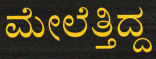
ಮೇಲೆತ್ತಿದ್ದ